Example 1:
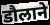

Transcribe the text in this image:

डौलाने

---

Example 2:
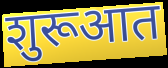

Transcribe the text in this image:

शुरूआत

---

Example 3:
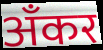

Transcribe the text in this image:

अँकर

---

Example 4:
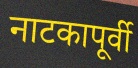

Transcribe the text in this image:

नाटकापूर्वी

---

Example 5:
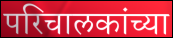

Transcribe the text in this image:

परिचालकांच्या